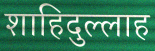
शाहिदुल्लाह